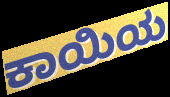
ಕಾಯಿಯ